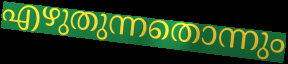
എഴുതുന്നതൊന്നും